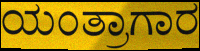
ಯಂತ್ರಾಗಾರ